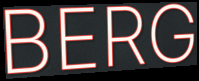
BERG